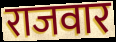
राजवार